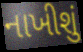
નાખીશું